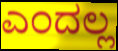
ಎಂದಲ್ಲ